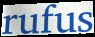
rufus